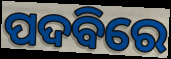
ପଦବିରେ